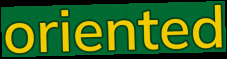
oriented